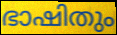
ഭാഷിതും